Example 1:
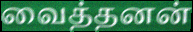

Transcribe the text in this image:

வைத்தனன்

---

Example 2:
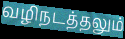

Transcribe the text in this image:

வழிநடத்தலும்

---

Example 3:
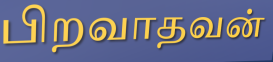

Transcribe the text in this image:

பிறவாதவன்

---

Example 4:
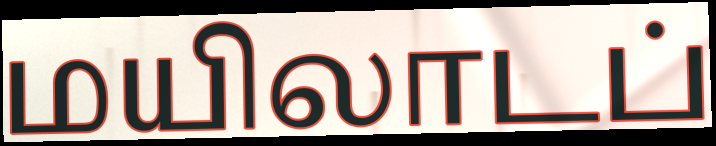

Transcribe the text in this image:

மயிலாடப்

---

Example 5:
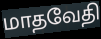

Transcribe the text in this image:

மாதவேதி